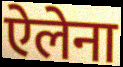
ऐलेना